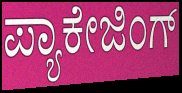
ಪ್ಯಾಕೇಜಿಂಗ್